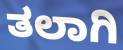
ತಲಾಗಿ